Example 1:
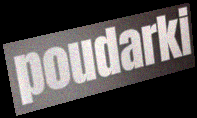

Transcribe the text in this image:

poudarki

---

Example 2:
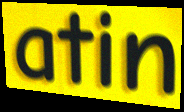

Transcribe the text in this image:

atin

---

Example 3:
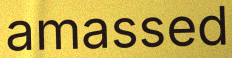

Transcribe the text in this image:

amassed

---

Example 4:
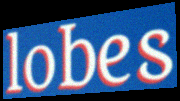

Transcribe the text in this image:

lobes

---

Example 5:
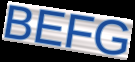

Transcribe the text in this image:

BEFG